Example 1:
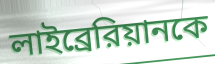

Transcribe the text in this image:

লাইব্রেরিয়ানকে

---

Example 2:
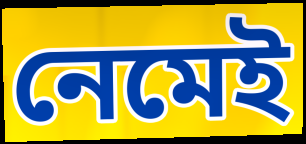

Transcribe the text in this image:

নেমেই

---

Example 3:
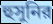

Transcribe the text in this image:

হুসুনির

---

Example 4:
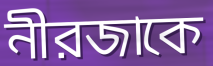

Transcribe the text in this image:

নীরজাকে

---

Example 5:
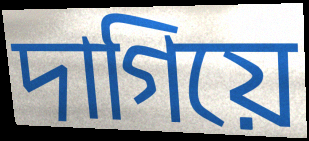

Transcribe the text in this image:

দাগিয়ে